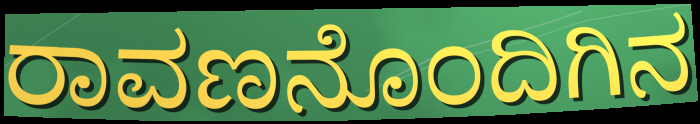
ರಾವಣನೊಂದಿಗಿನ